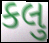
કલુ